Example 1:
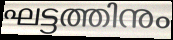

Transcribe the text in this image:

ഘട്ടത്തിനും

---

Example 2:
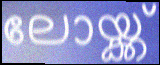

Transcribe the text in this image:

ലോയ്ക്ക്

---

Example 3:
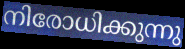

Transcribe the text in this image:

നിരോധിക്കുന്നു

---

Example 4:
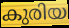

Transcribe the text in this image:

കുരിയ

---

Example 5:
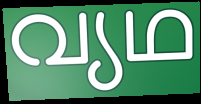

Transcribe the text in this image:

വ്യഥ